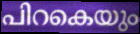
പിറകെയും